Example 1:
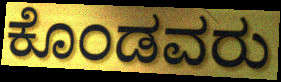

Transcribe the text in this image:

ಕೊಂಡವರು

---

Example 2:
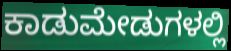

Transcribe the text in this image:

ಕಾಡುಮೇಡುಗಳಲ್ಲಿ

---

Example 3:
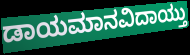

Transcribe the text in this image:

ಡಾಯಮಾನವಿದಾಯ್ತು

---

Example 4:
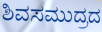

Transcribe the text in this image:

ಶಿವಸಮುದ್ರದ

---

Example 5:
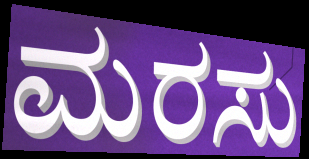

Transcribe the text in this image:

ಮರಸು